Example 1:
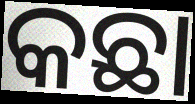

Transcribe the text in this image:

କଛା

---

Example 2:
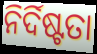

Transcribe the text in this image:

ନିର୍ଦିଷ୍ଟତା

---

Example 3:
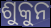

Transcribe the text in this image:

ଶୁକୁନ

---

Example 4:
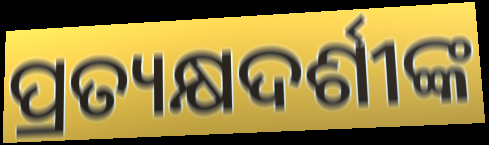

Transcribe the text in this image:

ପ୍ରତ୍ୟକ୍ଷଦର୍ଶୀଙ୍କ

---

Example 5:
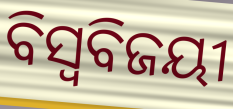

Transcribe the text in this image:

ବିସ୍ଵବିଜୟୀ